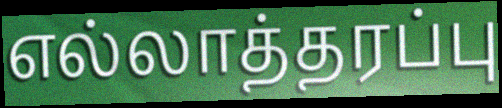
எல்லாத்தரப்பு